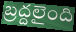
బ్రద్దలైంది